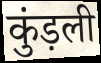
कुंड़ली